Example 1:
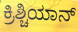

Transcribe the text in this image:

ಕ್ರಿಶ್ಚಿಯಾನ್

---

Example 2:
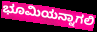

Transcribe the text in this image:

ಭೂಮಿಯನ್ನಾಗಲಿ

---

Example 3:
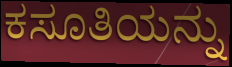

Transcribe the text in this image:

ಕಸೂತಿಯನ್ನು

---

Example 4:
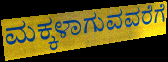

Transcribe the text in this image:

ಮಕ್ಕಳಾಗುವವರೆಗೆ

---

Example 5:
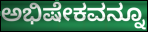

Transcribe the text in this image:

ಅಭಿಷೇಕವನ್ನೂ